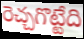
రెచ్చగొట్టేది